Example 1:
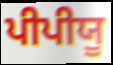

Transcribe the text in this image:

ਪੀਪੀਯੂ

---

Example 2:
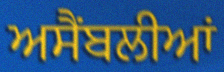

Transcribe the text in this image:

ਅਸੈਂਬਲੀਆਂ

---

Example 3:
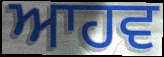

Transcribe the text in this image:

ਆਹਵ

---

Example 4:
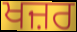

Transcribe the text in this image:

ਖਜ਼ਰ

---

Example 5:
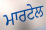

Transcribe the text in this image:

ਮਾਰਟੇਲ